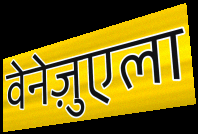
वेनेज़ुएला